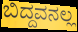
ಬಿದ್ದವನಲ್ಲ